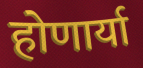
होणार्या